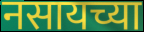
नसायच्या